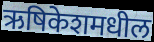
ऋषिकेशमधील